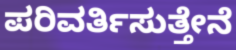
ಪರಿವರ್ತಿಸುತ್ತೇನೆ